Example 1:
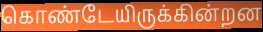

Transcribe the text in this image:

கொண்டேயிருக்கின்றன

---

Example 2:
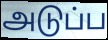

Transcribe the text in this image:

அடுப்ப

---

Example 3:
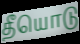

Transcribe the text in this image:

தீயொடு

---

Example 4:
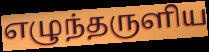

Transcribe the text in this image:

எழுந்தருளிய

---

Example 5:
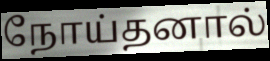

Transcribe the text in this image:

நோய்தனால்